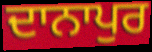
ਦਾਨਾਪੁਰ